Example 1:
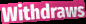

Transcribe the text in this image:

Withdraws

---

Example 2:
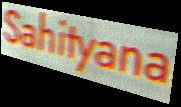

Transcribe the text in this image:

Sahityana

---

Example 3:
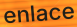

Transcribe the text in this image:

enlace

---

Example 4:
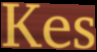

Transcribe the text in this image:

Kes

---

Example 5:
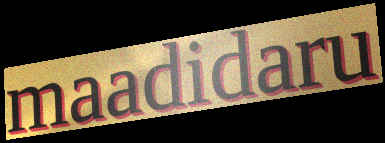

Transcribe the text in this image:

maadidaru